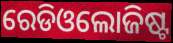
ରେଡିଓଲୋଜିଷ୍ଟ